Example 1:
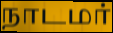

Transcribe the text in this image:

நாடமர்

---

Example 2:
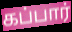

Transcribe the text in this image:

கப்பார்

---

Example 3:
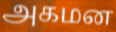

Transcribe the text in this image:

அகமன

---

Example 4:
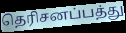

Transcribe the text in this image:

தெரிசனப்பத்து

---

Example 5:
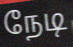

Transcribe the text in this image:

நேடி